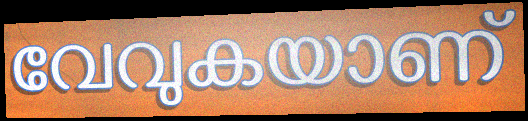
വേവുകയാണ്